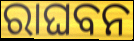
ରାଘବନ